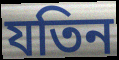
যতিন